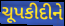
ચૂપકીદીને